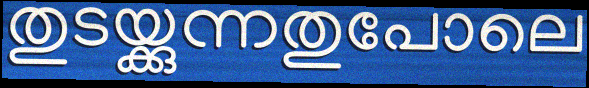
തുടയ്ക്കുന്നതുപോലെ